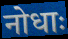
नोधाः